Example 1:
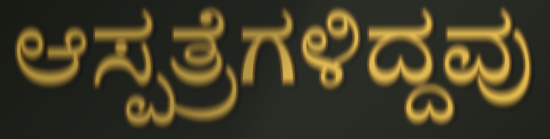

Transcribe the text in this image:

ಆಸ್ಪತ್ರೆಗಳಿದ್ದವು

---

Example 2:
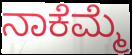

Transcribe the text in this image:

ನಾಕೆಮ್ಮೆ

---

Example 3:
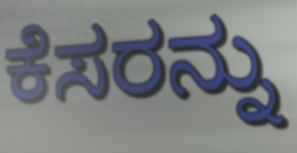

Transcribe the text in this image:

ಕೆಸರನ್ನು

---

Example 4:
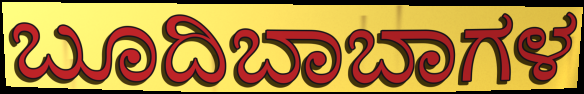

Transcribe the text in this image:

ಬೂದಿಬಾಬಾಗಳ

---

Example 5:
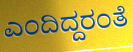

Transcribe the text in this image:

ಎಂದಿದ್ದರಂತೆ